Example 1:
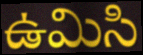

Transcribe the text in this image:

ఉమిసి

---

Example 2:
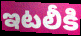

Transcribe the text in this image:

ఇటలీకి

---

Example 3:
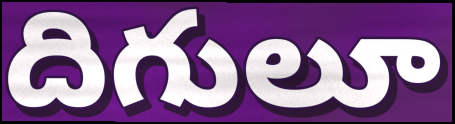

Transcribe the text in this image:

దిగులూ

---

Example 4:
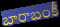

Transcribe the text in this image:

బారాబంకీ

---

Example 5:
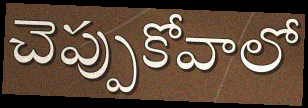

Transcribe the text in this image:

చెప్పుకోవాలో